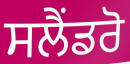
ਸਲੈਂਡਰੋ